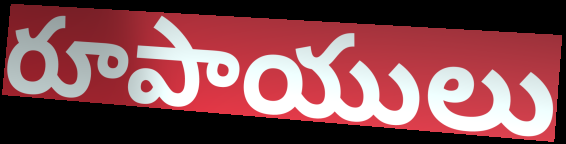
రూపాయులు